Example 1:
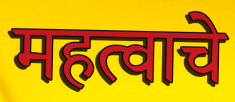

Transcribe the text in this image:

महत्वाचे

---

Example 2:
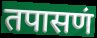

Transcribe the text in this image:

तपासणं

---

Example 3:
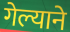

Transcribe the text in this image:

गेल्‍याने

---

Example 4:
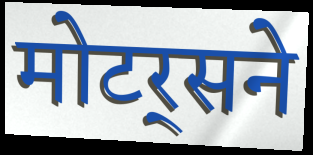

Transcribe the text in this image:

मोटर्सने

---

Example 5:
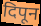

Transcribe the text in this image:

दिपून